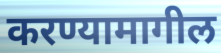
करण्यामागील